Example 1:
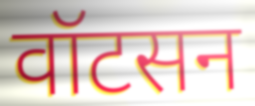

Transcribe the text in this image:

वॉटसन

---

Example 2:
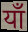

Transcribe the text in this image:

याँ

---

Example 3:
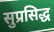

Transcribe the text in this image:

सुप्रसिद्ध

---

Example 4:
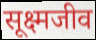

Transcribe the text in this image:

सूक्ष्मजीव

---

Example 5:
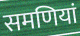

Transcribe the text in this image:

समणियां